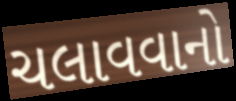
ચલાવવાનો